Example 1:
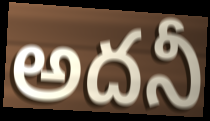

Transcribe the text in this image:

అదనీ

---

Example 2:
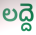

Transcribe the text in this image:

లద్దె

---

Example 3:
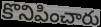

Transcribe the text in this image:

కొనిపించారు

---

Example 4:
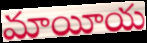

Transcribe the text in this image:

మాయీయ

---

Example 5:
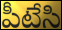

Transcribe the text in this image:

పీటేసి